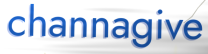
channagive